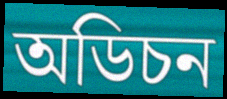
অডিচন